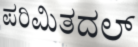
ಪರಿಮಿತದಲ್